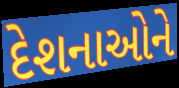
દેશનાઓને